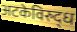
अटकेविरुद्ध